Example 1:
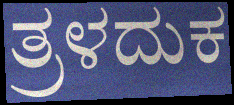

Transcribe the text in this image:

ತ್ರಳದುಕ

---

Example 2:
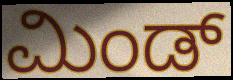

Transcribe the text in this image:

ಮಿಂಡ್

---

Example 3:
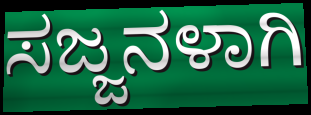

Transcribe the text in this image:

ಸಜ್ಜನಳಾಗಿ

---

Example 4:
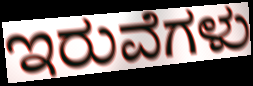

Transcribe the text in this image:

ಇರುವೆಗಳು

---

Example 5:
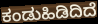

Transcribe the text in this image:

ಕಂಡುಹಿಡಿದಿದೆ